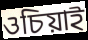
ওচিয়াই